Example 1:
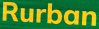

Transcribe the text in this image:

Rurban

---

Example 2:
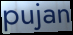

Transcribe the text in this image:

pujan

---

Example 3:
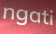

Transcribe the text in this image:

ngati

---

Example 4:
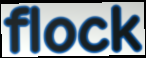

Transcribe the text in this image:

flock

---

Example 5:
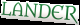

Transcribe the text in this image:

LANDER